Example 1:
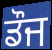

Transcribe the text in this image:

ਡੌਜ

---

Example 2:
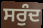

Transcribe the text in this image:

ਸਰੁੰਦ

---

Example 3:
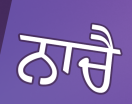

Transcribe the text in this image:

ਨਾਚੈ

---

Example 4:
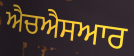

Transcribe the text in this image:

ਐਚਐਸਆਰ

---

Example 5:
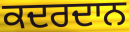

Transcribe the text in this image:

ਕਦਰਦਾਨ